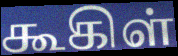
கூகிள்